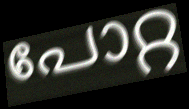
പോറ്റ